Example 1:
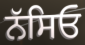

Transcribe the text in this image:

ਨੱਸਿਓ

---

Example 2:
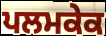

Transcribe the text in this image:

ਪਲਮਕੇਕ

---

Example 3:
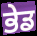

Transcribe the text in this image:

ਭੇਡ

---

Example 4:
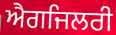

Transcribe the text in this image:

ਐਗਜਿਲਰੀ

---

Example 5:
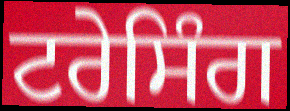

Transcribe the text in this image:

ਟਰੇਸਿੰਗ